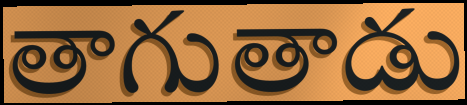
తాగుతాడు